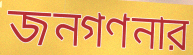
জনগণনার